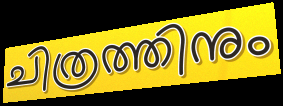
ചിത്രത്തിനും